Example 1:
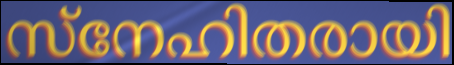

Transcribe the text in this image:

സ്നേഹിതരായി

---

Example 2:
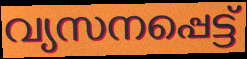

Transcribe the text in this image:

വ്യസനപ്പെട്ട്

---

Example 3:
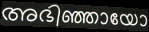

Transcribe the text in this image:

അഭിഞ്ഞായോ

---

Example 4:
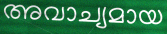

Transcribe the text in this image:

അവാച്യമായ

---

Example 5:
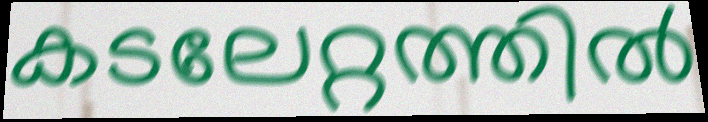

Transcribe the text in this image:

കടലേറ്റത്തിൽ